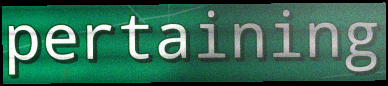
pertaining